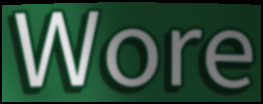
Wore